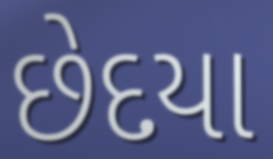
છેદયા